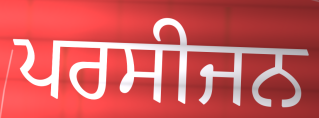
ਪਰਸੀਜਨ